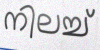
നിലച്ച്